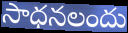
సాధనలందు